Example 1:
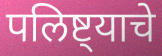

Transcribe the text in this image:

पलिष्ट्याचे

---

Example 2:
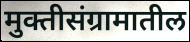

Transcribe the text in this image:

मुक्तीसंग्रामातील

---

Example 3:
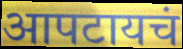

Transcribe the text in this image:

आपटायचं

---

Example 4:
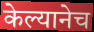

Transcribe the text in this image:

केल्यानेच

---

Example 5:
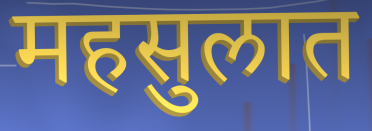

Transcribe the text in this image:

महसुलात